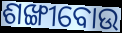
ଶଙ୍ଖୀବୋଉ